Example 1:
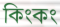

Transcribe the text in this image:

কিংকং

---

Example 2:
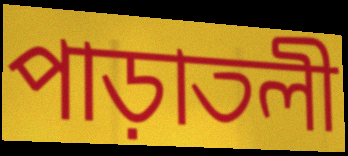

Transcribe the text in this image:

পাড়াতলী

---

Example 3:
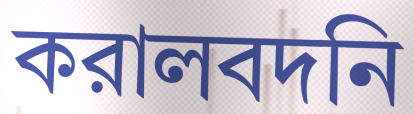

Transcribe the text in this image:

করালবদনি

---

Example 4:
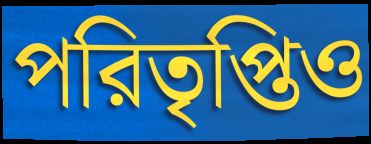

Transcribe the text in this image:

পরিতৃপ্তিও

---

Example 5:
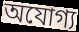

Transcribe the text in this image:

অযোগ্য